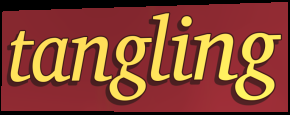
tangling